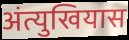
अंत्युखियास